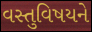
વસ્તુવિષયને